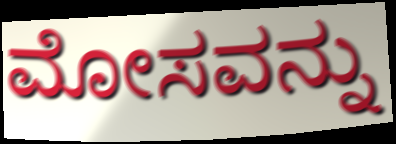
ಮೋಸವನ್ನು